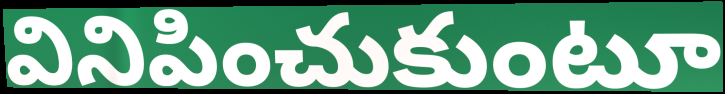
వినిపించుకుంటూ